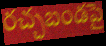
రచ్చబండపై